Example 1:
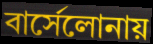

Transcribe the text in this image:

বার্সেলোনায়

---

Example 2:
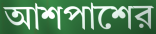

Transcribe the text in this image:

আশপাশের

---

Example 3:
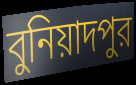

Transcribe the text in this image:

বুনিয়াদপুর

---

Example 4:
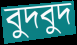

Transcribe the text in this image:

বুদবুদ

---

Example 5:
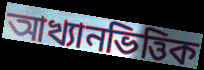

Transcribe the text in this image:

আখ্যানভিত্তিক